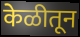
केळीतून